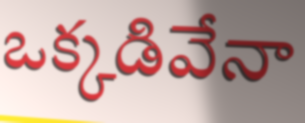
ఒక్కడివేనా